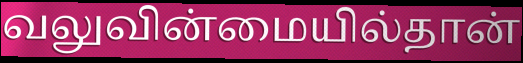
வலுவின்மையில்தான்